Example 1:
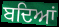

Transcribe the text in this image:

ਬਦਿਆਂ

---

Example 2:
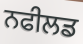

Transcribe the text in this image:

ਨਫੀਲਡ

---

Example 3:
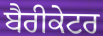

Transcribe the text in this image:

ਬੈਰੀਕੇਟਰ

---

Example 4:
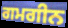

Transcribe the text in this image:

ਗਮਗੀਨ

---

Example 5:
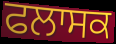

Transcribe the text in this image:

ਫਲਾਸਕ